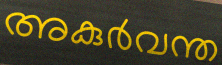
അകുർവന്ത